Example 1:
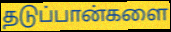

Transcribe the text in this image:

தடுப்பான்களை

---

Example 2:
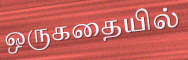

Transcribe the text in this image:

ஒருகதையில்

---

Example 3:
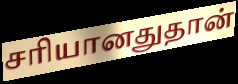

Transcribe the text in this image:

சரியானதுதான்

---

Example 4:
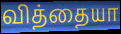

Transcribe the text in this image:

வித்தையா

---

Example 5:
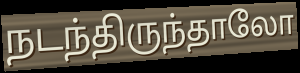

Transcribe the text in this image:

நடந்திருந்தாலோ